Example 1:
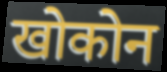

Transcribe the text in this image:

खोकोन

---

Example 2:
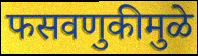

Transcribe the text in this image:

फसवणुकीमुळे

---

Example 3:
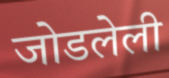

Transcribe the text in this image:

जोडलेली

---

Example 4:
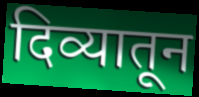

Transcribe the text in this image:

दिव्यातून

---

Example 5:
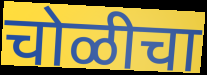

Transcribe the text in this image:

चोळीचा